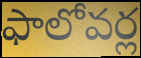
ఫాలోవర్ల